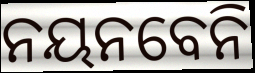
ନୟନବେନି